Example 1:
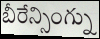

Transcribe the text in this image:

బీరేన్సింగ్ను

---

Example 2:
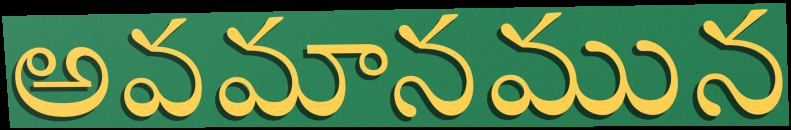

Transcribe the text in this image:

అవమానమున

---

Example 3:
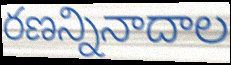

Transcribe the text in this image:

రణన్నినాదాల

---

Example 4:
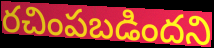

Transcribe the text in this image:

రచింపబడిందని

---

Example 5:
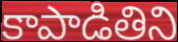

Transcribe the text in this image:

కాపాడితిని